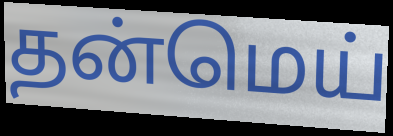
தன்மெய்